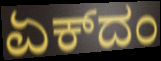
ಏಕ್‌ದಂ